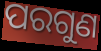
ପରଗୁଣ